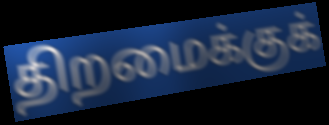
திறமைக்குக்